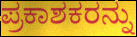
ಪ್ರಕಾಶಕರನ್ನು